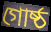
গোষ্ঠ